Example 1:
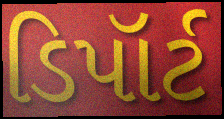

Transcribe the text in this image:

ડિપૉર્ટ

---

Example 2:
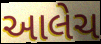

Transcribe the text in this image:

આલેચ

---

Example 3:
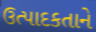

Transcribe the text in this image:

ઉત્પાદકતાને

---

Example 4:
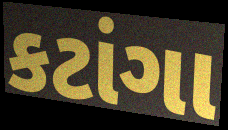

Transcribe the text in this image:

કટાંગા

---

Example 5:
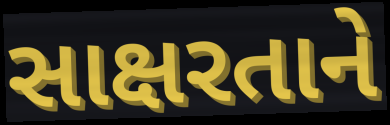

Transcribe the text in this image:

સાક્ષરતાને